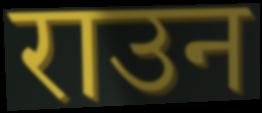
राउन